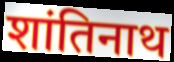
शांतिनाथ